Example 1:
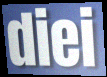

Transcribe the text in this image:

diei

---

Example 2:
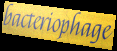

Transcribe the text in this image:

bacteriophage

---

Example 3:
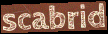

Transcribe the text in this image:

scabrid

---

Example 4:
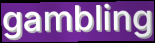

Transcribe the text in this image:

gambling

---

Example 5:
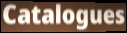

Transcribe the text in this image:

Catalogues